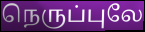
நெருப்புலே